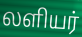
லளியர்